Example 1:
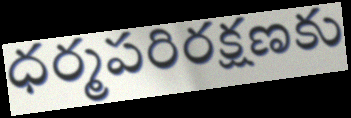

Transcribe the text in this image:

ధర్మపరిరక్షణకు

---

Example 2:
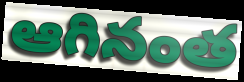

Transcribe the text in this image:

ఆగినంత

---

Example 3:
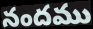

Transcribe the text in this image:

నందము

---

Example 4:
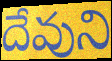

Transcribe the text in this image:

దేవుని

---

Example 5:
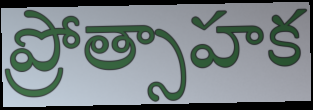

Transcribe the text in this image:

ప్రోత్సాహక